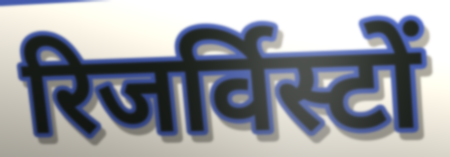
रिजर्विस्टों